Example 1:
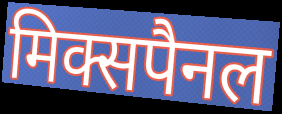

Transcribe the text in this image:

मिक्सपैनल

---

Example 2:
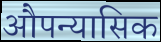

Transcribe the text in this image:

औपन्यासिक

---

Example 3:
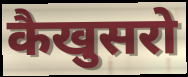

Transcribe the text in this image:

कैखुसरो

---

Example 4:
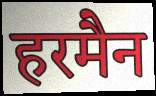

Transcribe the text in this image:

हरमैन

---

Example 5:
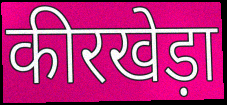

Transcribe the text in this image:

कीरखेड़ा